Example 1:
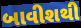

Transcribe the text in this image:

બાવીશથી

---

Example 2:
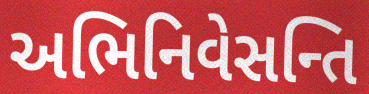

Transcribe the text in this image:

અભિનિવેસન્તિ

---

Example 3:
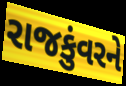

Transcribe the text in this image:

રાજકુંવરને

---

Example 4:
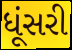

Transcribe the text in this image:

ધૂંસરી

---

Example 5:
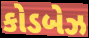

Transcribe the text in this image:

કોડબેઝ